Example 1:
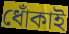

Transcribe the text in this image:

ধোঁকাই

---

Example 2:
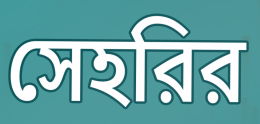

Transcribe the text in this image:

সেহরির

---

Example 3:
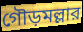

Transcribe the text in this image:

গৌড়মল্লার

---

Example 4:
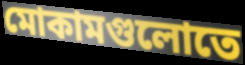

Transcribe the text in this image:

মোকামগুলোতে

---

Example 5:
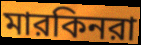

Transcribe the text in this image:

মারকিনরা